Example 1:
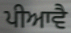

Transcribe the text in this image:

ਪੀਆਵੈ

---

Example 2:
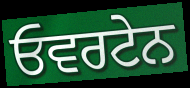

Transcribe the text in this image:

ਓਵਰਟੇਨ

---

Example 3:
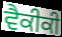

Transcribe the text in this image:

ਵੈਕੀਕੀ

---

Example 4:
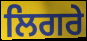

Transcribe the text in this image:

ਲਿਗਰੇ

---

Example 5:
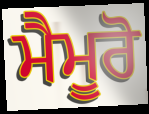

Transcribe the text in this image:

ਮੈਮੂਰੋ